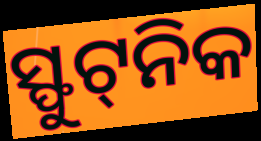
ସ୍ଫୁଟ୍‌ନିକ